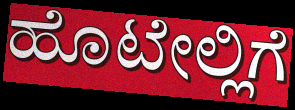
ಹೊಟೇಲ್ಲಿಗೆ